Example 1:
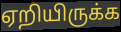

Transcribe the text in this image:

ஏறியிருக்க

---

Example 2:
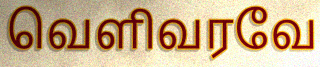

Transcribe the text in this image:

வெளிவரவே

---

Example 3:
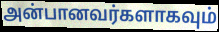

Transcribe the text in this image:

அன்பானவர்களாகவும்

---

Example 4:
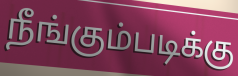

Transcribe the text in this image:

நீங்கும்படிக்கு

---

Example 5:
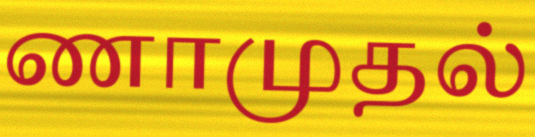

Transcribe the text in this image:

ணாமுதல்